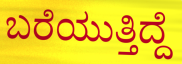
ಬರೆಯುತ್ತಿದ್ದೆ